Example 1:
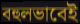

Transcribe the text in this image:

বহুলভাবেই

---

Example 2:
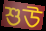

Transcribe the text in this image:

শুউ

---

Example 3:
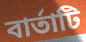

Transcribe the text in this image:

বার্তাটি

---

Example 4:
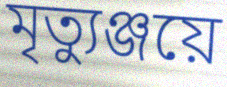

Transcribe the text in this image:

মৃত্যুঞ্জয়ে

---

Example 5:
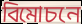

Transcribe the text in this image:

বিমোচনে